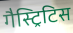
गैस्ट्रिटिस